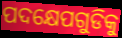
ପଦକ୍ଷେପଗୁଡିକୁ